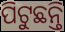
ପିଟୁଛନ୍ତି